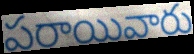
పరాయివారు